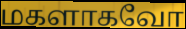
மகளாகவோ